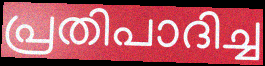
പ്രതിപാദിച്ച